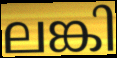
ലങ്കി